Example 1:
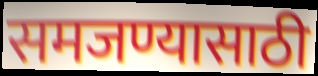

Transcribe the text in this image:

समजण्यासाठी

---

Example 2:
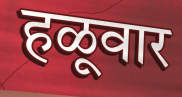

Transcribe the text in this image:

हळूवार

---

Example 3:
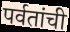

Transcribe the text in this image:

पर्वतांची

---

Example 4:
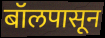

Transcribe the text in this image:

बॉलपासून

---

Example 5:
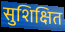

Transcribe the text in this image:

सुशिक्षित